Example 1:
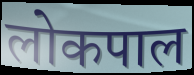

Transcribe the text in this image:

लोकपाल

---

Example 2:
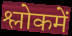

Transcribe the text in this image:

श्लोकमें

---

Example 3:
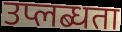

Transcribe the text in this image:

उप्लब्धता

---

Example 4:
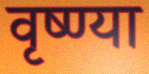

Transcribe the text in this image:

वृष्ण्या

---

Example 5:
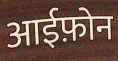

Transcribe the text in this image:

आईफ़ोन